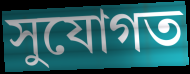
সুযোগত